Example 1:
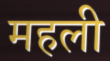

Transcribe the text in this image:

महली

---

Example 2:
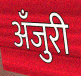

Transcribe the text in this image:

अँजुरी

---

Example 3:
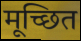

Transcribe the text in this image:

मूच्छित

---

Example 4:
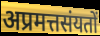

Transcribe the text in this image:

अप्रमत्तसंयतों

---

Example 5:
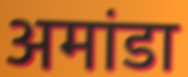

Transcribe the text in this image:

अमांडा